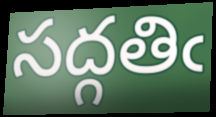
సద్గతిఁ